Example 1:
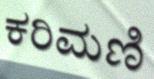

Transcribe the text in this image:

ಕರಿಮಣಿ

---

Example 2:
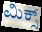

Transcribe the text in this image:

ಮಿಕ್ಸ್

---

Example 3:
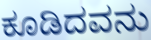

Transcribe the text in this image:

ಕೂಡಿದವನು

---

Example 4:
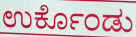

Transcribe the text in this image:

ಉರ್ಕೊಂಡು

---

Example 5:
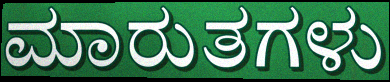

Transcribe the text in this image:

ಮಾರುತಗಳು